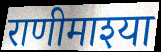
राणीमाश्या